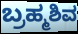
ಬ್ರಹ್ಮಶಿವ